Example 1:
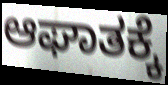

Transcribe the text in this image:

ಆಘಾತಕ್ಕೆ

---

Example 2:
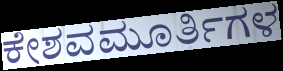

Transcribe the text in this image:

ಕೇಶವಮೂರ್ತಿಗಳ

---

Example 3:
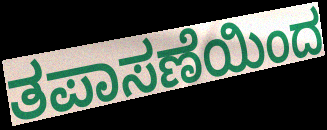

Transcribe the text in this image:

ತಪಾಸಣೆಯಿಂದ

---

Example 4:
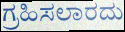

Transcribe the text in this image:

ಗ್ರಹಿಸಲಾರದು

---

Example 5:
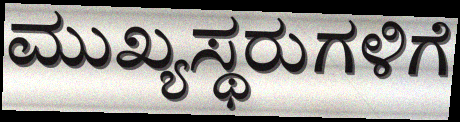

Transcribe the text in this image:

ಮುಖ್ಯಸ್ಥರುಗಳಿಗೆ